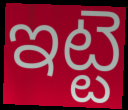
ఇట్టె